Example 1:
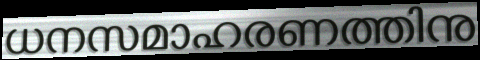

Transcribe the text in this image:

ധനസമാഹരണത്തിനു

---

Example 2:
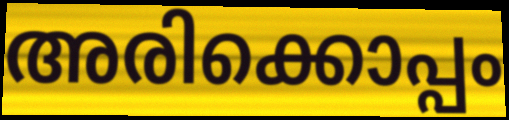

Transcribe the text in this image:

അരിക്കൊപ്പം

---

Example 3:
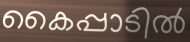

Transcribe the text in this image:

കൈപ്പാടിൽ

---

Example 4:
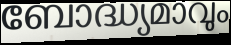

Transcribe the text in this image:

ബോദ്ധ്യമാവും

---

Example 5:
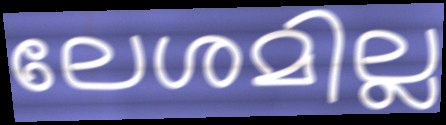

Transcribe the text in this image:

ലേശമില്ല